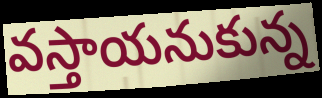
వస్తాయనుకున్న